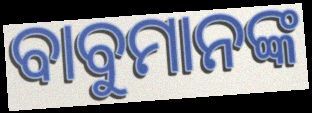
ବାବୁମାନଙ୍କ